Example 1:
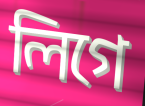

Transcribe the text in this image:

লিগে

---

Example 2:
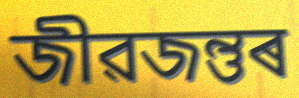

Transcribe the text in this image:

জীৱজন্তুৰ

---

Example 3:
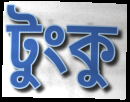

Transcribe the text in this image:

টুংকু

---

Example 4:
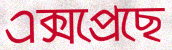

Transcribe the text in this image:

এক্সপ্ৰেছে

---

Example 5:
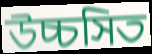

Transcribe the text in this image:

উচ্চসিত